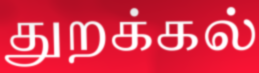
துறக்கல்